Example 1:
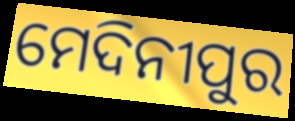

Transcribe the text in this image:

ମେଦିନୀପୁର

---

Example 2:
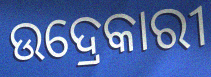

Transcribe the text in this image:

ଉଦ୍ରେକାରୀ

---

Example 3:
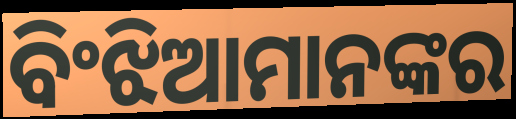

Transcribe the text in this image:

ବିଂଝିଆମାନଙ୍କର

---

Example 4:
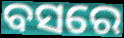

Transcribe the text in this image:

ବସରେ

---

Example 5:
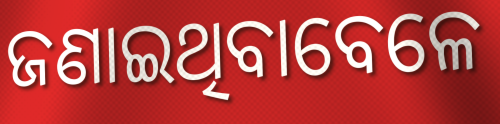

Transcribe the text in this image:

ଜଣାଇଥିବାବେଳେ